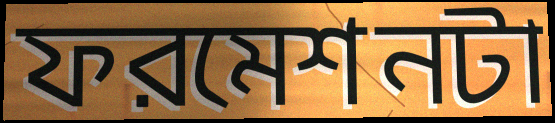
ফরমেশনটা